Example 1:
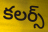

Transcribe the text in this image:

కలర్స్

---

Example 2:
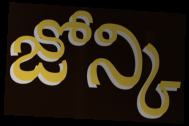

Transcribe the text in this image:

జోన్కి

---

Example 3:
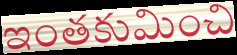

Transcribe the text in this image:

ఇంతకుమించి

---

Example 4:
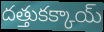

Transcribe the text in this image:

దత్తుకక్కాయ్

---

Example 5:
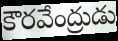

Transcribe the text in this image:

కౌరవేంద్రుడు